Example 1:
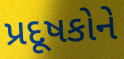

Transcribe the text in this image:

પ્રદૂષકોને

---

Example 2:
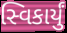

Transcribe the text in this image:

સ્વિકાર્યું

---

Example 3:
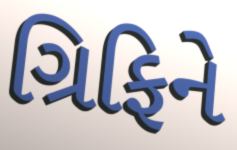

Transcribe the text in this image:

ગ્રિફિને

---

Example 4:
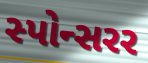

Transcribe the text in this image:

સ્પોન્સરર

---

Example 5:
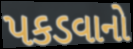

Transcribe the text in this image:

પકડવાનો